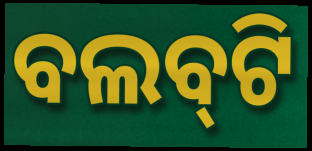
ବଲବ୍‌ଟି